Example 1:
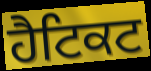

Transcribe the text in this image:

ਹੈਟਿਕਟ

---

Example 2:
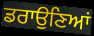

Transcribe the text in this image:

ਡਰਾਉਣਿਆਂ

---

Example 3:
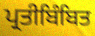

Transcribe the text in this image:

ਪ੍ਰਤੀਬਿੰਬਿਤ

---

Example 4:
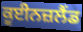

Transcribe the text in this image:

ਕੂਈਨਜ਼ਲੈਂਡ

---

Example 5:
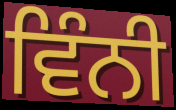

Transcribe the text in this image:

ਵਿੰਨੀ